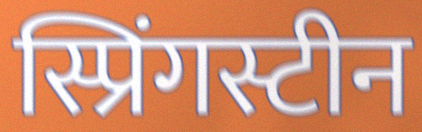
स्प्रिंगस्टीन